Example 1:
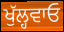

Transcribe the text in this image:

ਖੁੱਲ੍ਹਵਾਓ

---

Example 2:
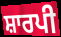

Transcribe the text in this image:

ਸ਼ਾਰਪੀ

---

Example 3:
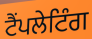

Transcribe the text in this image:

ਟੈਂਪਲੇਟਿੰਗ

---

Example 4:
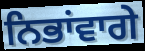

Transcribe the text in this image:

ਨਿਭਾਂਵਾਗੇ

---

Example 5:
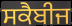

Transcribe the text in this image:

ਸਕੈਬੀਜ